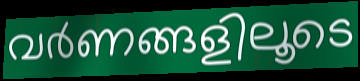
വർണങ്ങളിലൂടെ